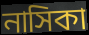
নাসিকা